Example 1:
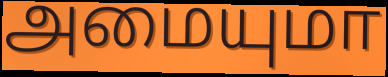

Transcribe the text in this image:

அமையுமா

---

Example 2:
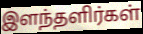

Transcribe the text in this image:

இளந்தளிர்கள்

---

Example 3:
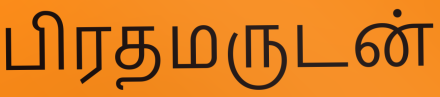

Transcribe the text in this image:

பிரதமருடன்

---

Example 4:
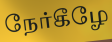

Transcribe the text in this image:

நேர்கீழே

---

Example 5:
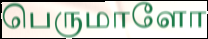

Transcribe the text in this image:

பெருமாளோ